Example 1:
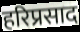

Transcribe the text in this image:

हरिप्रसाद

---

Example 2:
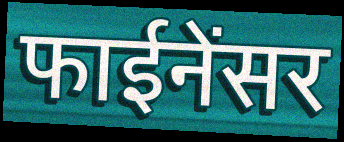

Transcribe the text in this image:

फाईनेंसर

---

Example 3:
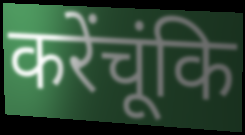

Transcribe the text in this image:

करेंचूंकि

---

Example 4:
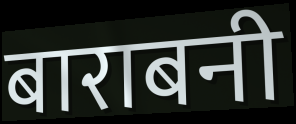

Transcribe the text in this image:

बाराबनी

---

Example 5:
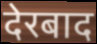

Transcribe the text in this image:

देरबाद